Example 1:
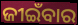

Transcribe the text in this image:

ଜୀଇଁବାର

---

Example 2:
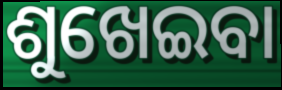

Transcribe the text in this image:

ଶୁଖେଇବା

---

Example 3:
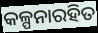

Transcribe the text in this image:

କଳ୍ପନାରହିତ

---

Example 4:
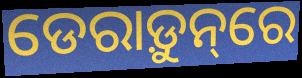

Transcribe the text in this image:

ଡେରାଡ଼ୁନ୍‌ରେ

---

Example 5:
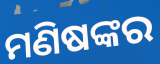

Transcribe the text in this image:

ମଣିଷଙ୍କର